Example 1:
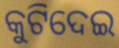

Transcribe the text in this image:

କୁଟିଦେଇ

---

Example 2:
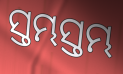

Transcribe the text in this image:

ସ୍ତମ୍ଭସ୍ତମ୍ଭ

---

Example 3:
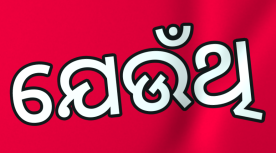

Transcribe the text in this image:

ଯେଉଁଥି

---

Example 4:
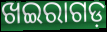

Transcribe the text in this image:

ଖଇରାଗଡ଼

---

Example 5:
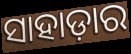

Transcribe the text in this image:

ସାହାଡ଼ାର